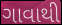
ગાવાથી